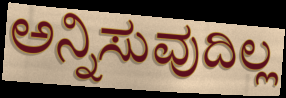
ಅನ್ನಿಸುವುದಿಲ್ಲ